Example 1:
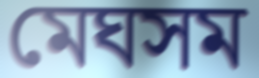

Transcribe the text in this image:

মেঘসম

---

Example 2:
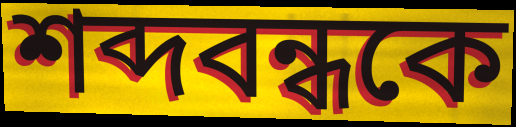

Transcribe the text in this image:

শব্দবন্ধকে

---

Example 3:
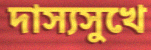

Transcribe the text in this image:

দাস্যসুখে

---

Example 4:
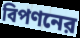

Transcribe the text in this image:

বিপণনের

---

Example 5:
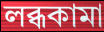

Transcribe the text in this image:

লব্ধকামা